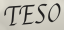
TESO